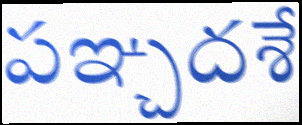
పఞ్చదశే